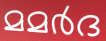
മമർദ